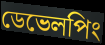
ডেভেলপিং